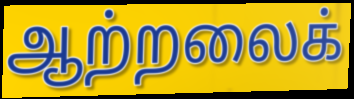
ஆற்றலைக்